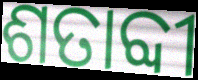
ଶତାବ୍ଦୀ